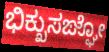
ಭಿಕ್ಖುಸಙ್ಘೋ